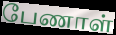
பேணாள்